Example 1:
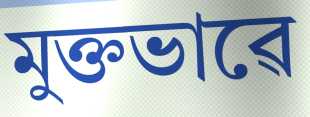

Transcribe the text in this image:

মুক্তভাৱে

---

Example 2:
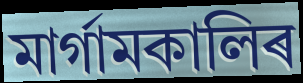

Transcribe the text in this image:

মাৰ্গামকালিৰ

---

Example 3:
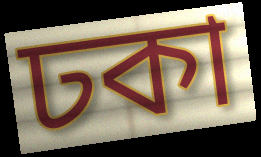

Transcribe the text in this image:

ঢকা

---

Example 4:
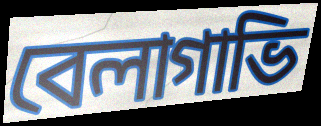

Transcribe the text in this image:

বেলাগাভি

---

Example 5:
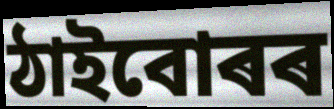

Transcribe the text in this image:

ঠাইবোৰৰ